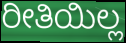
ರೀತಿಯಿಲ್ಲ